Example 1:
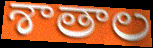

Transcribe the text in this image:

శాతాల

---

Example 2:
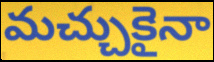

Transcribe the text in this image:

మచ్చుకైనా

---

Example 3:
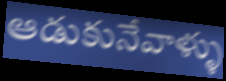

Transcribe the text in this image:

ఆడుకునేవాళ్ళు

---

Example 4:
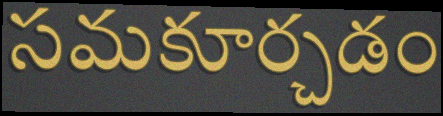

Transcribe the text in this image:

సమకూర్చడం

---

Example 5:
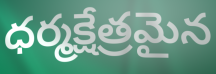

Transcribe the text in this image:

ధర్మక్షేత్రమైన